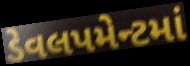
ડેવલપમેન્ટમાં